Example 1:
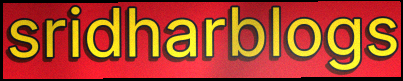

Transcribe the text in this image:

sridharblogs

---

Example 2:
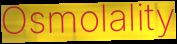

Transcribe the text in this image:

Osmolality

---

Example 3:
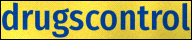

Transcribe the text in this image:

drugscontrol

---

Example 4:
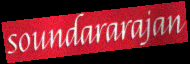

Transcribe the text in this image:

soundararajan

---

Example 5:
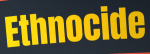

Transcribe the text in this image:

Ethnocide